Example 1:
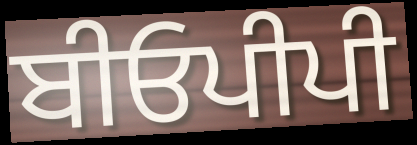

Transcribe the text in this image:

ਬੀਓਪੀਪੀ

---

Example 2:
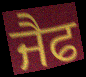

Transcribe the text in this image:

ਜੈਫ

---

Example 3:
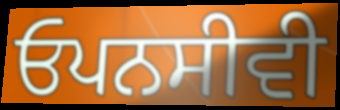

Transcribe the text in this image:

ਓਪਨਸੀਵੀ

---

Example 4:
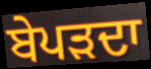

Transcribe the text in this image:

ਬੇਪੜਦਾ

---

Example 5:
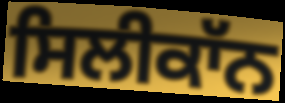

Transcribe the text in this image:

ਸਿਲੀਕਾੱਨ